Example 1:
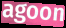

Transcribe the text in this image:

agoon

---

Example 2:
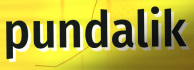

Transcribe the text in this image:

pundalik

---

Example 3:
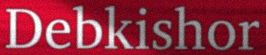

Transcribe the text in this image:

Debkishor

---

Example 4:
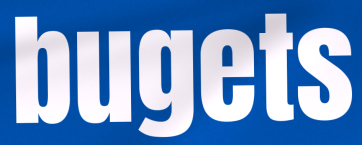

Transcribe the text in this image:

bugets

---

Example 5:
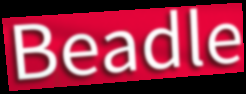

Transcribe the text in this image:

Beadle